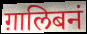
ग़ालिबनं